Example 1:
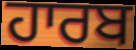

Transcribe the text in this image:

ਹਾਰਬ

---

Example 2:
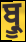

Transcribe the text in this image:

ਬ੍ਰੂ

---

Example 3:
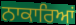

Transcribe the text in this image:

ਨਾਕਾਰਿਆਂ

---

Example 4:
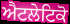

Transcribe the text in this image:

ਐਟਲੇਟਿਕੋ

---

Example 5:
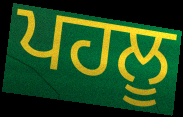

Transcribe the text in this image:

ਪਹਲੂ